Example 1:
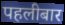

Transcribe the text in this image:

पहलीबार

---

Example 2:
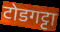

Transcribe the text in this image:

टोडगट्टा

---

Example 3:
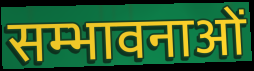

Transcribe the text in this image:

सम्भावनाओं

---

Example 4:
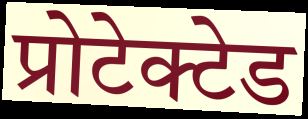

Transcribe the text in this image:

प्रोटेक्टेड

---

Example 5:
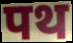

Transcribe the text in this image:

पथ